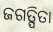
ଜଗତ୍ପିତା